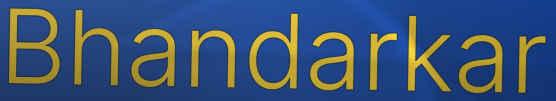
Bhandarkar